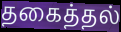
தகைத்தல்